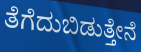
ತೆಗೆದುಬಿಡುತ್ತೇನೆ